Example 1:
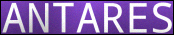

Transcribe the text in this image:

ANTARES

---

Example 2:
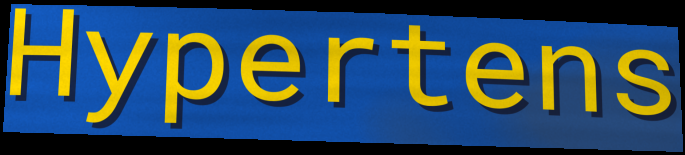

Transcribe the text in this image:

Hypertens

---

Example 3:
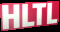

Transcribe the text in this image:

HLTL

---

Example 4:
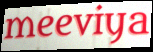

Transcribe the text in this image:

meeviya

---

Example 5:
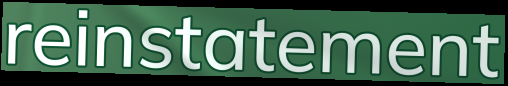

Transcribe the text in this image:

reinstatement